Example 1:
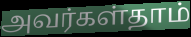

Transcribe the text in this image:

அவர்கள்தாம்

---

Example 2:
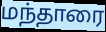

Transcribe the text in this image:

மந்தாரை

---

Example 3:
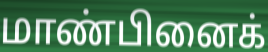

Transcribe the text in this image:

மாண்பினைக்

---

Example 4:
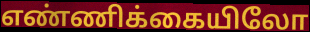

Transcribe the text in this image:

எண்ணிக்கையிலோ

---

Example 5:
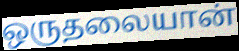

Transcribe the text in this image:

ஒருதலையான்